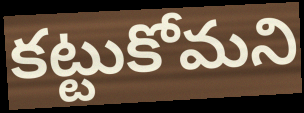
కట్టుకోమని